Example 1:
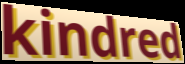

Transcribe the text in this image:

kindred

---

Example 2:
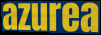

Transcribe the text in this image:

azurea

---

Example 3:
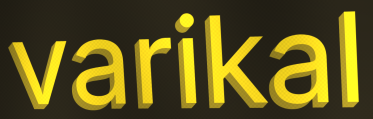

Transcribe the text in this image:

varikal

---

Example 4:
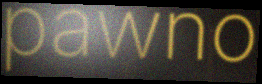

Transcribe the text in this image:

pawno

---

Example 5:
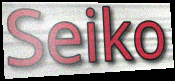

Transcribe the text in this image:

Seiko